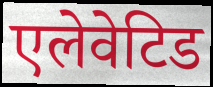
एलेवेटिड